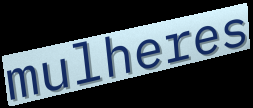
mulheres